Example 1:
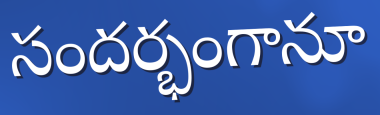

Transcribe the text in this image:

సందర్భంగానూ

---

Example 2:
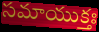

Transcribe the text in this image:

సమాయుక్తః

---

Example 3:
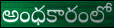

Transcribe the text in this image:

అంధకారంలో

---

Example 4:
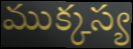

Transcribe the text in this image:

ముక్కస్య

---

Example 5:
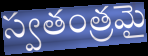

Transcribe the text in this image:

స్వతంత్రమై